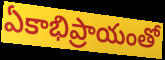
ఏకాభిప్రాయంతో